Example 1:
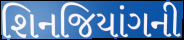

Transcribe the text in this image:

શિનજિયાંગની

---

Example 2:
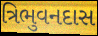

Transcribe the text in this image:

ત્રિભુવનદાસ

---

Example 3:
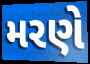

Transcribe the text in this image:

મરણે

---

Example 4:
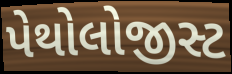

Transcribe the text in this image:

પેથોલોજીસ્ટ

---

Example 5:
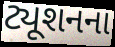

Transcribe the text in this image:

ટ્યૂશનના